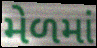
મેળમાં